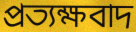
প্রত্যক্ষবাদ